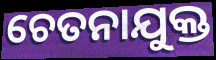
ଚେତନାଯୁକ୍ତ